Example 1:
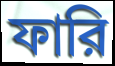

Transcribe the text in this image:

ফারি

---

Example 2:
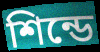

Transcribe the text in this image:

শিন্ডে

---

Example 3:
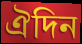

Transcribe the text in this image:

ঐদিন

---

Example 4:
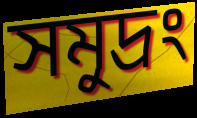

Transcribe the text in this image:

সমুদ্রং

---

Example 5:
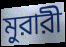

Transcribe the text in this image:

মুরারী